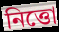
নিত্তো